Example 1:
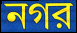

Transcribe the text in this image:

নগর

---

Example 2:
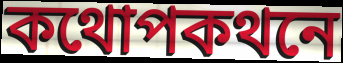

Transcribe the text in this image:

কথোপকথনে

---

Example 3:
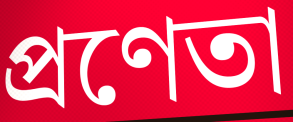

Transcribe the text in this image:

প্রণেতা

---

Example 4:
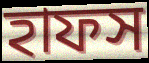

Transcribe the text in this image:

হাফস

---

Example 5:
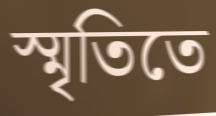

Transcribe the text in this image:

স্মৃতিতে